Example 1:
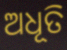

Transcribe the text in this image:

ଅଧୂତି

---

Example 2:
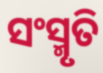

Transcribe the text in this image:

ସଂସ୍ମୃତି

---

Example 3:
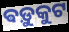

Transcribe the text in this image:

ଵଡ଼ୁକୁଟ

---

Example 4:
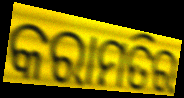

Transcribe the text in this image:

କରାମତିର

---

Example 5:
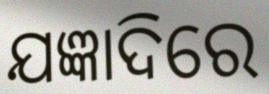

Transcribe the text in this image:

ଯଜ୍ଞାଦିରେ